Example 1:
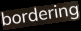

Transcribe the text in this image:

bordering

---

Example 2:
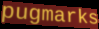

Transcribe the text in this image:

pugmarks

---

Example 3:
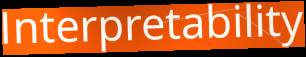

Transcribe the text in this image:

Interpretability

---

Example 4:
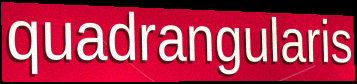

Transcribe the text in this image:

quadrangularis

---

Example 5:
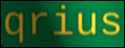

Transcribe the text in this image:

qrius